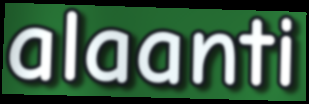
alaanti